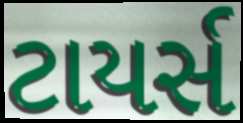
ટાયર્સ